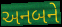
અનબને